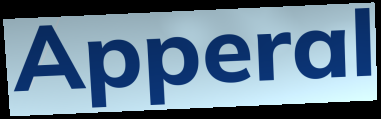
Apperal